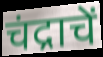
चंद्राचें